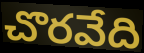
చొరవేది